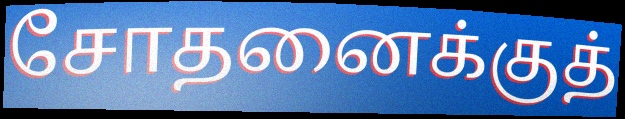
சோதனைக்குத்